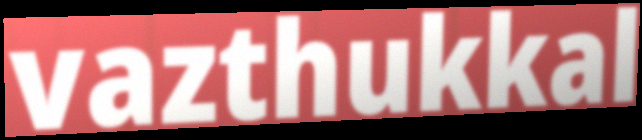
vazthukkal